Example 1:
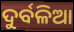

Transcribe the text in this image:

ଦୁର୍ବଳିଆ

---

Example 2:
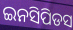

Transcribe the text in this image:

ଇନସିପିଡସ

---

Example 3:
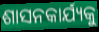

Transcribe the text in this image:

ଶାସନକାର୍ଯ୍ୟକୁ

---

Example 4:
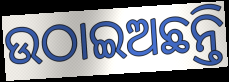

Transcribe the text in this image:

ଉଠାଇଅଛନ୍ତି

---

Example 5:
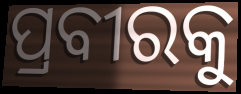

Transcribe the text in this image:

ପ୍ରବୀରକୁ